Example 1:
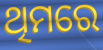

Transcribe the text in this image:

ଥିମରେ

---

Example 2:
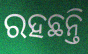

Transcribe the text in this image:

ରହଛନ୍ତି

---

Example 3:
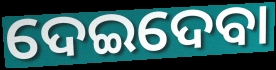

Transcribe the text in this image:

ଦେଇଦେବା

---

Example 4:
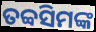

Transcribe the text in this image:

ତବ୍ବସିମଙ୍କ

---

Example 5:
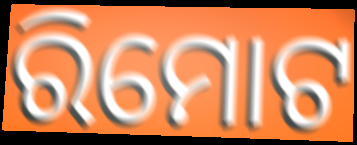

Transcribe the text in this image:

ରିମୋଟ